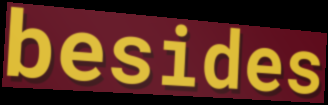
besides